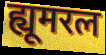
ह्यूमरल